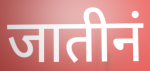
जातीनं